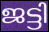
ജട്ടി